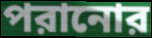
পরানোর